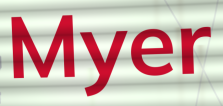
Myer